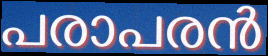
പരാപരൻ